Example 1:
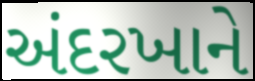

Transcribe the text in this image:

અંદરખાને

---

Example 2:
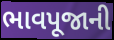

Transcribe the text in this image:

ભાવપૂજાની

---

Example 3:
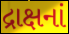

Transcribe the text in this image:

દ્રાક્ષનાં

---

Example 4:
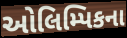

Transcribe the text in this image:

ઓલિમ્પિકના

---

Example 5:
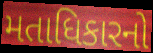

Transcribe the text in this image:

મતાધિકારનો